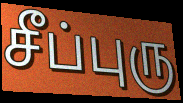
சீப்புரு